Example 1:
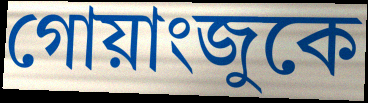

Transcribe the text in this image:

গোয়াংজুকে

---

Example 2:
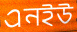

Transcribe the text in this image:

এনইউ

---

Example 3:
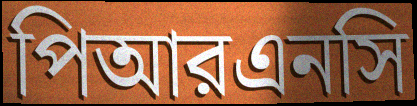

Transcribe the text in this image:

পিআরএনসি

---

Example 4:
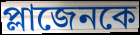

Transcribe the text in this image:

প্লাজেনকে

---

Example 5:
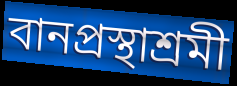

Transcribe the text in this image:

বানপ্রস্থাশ্রমী